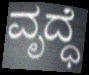
ವೃದ್ಧೆ